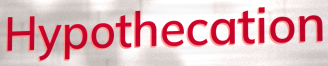
Hypothecation